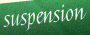
suspension